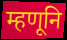
म्हणूनि